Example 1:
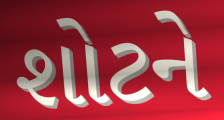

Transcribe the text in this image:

શોટને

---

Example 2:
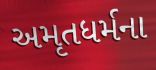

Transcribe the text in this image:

અમૃતધર્મના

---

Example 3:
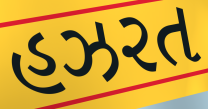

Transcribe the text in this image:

હઝરત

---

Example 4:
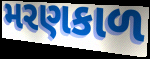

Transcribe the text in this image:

મરણકાળ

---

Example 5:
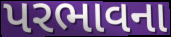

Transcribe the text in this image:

પરભાવના